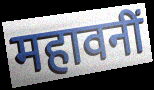
महावनीं